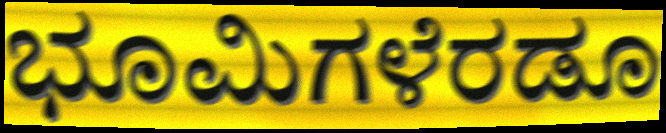
ಭೂಮಿಗಳೆರಡೂ